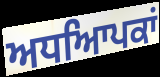
ਅਧਆਿਪਕਾਂ